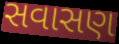
સવાસણ